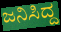
ಜನಿಸಿದ್ದ